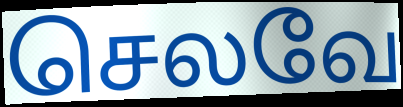
செலவே